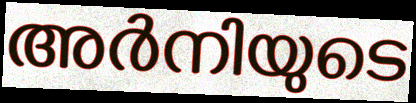
അർനിയുടെ